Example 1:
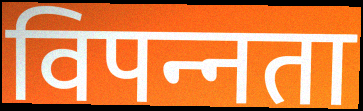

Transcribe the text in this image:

विपन्नता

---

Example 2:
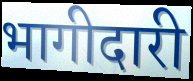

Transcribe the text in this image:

भागीदारी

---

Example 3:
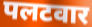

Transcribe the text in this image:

पलटवार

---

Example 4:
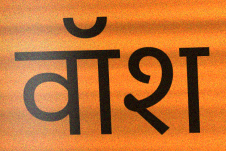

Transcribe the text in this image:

वॉश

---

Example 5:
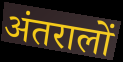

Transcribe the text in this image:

अंतरालों